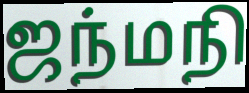
ஜந்மநி